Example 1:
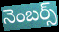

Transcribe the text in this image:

నెంబర్స్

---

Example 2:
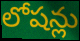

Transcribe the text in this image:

లోషన్లు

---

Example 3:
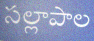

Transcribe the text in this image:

సల్లాపాల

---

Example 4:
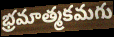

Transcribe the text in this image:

భ్రమాత్మకమగు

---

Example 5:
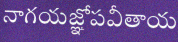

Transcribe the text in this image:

నాగయజ్ఞోపవీతాయ